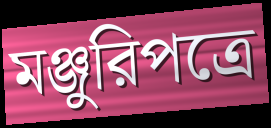
মঞ্জুরিপত্রে